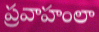
ప్రవాహంలా